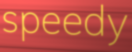
speedy